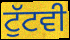
ਟੁੱਟਵੀ